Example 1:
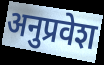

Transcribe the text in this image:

अनुप्रवेश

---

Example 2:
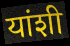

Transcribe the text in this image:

यांशी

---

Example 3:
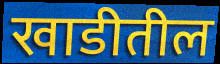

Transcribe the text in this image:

खाडीतील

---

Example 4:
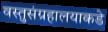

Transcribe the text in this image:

वस्तुसंग्रहालयाकडे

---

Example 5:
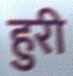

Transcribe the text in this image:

हुरी